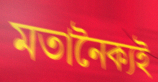
মতানৈক্যই